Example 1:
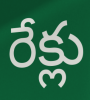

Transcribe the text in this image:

రేక్లు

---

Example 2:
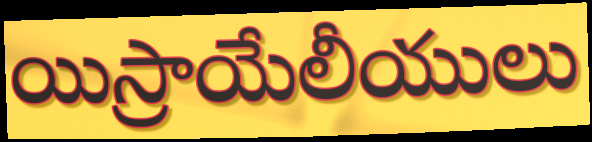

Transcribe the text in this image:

యిస్రాయేలీయులు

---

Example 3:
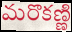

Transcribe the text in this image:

మరొకణ్ణి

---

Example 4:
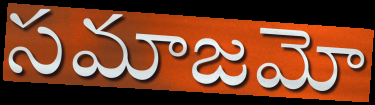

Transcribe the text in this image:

సమాజమో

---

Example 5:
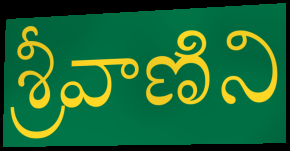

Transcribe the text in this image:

శ్రీవాణిని